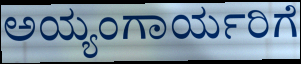
ಅಯ್ಯಂಗಾರ್ಯರಿಗೆ